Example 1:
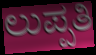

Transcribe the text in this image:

ಲುಪ್ಪತಿ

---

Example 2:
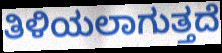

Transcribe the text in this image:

ತಿಳಿಯಲಾಗುತ್ತದೆ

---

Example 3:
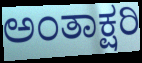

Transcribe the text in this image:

ಅಂತಾಕ್ಷರಿ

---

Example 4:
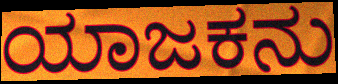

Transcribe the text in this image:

ಯಾಜಕನು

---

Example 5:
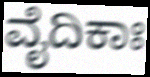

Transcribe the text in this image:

ವೈದಿಕಾಃ